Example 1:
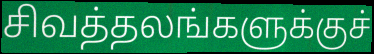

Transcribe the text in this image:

சிவத்தலங்களுக்குச்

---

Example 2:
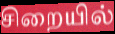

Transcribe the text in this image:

சிறையில்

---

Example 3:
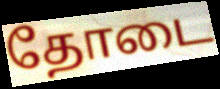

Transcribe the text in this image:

தோடை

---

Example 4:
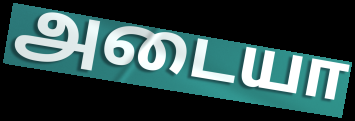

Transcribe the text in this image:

அடையா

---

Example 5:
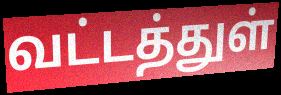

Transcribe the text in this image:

வட்டத்துள்